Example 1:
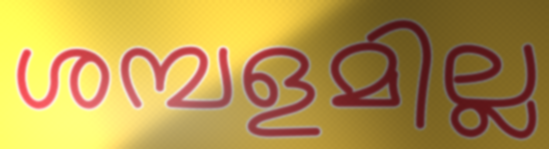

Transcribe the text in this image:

ശമ്പളമില്ല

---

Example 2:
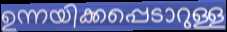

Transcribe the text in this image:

ഉന്നയിക്കപ്പെടാറുള്ള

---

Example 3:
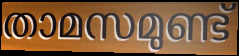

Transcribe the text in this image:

താമസമുണ്ട്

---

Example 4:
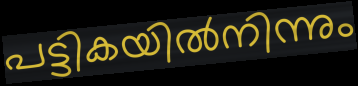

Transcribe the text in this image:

പട്ടികയിൽനിന്നും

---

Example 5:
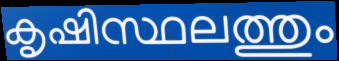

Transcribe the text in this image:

കൃഷിസ്ഥലത്തും